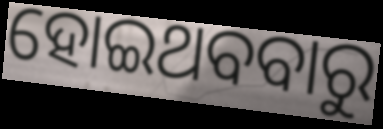
ହୋଇଥବବାରୁ